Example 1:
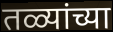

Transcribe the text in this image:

तळ्यांच्या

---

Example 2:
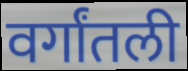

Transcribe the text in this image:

वर्गांतली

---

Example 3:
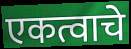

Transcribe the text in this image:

एकत्वाचे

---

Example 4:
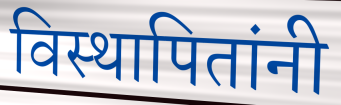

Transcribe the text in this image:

विस्थापितांनी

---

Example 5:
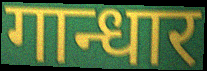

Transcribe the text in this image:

गान्धार